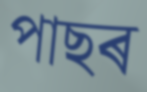
পাছৰ